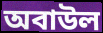
অবাউল